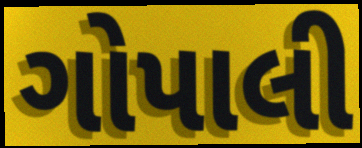
ગોપાલી